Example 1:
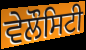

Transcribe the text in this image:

ਵੇਲੌਸਿਟੀ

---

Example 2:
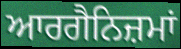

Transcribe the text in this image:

ਆਰਗੈਨਿਜ਼ਮਾਂ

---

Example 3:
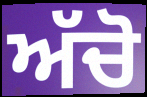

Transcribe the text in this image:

ਅੱਚੋ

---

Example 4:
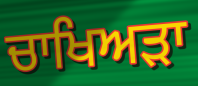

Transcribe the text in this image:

ਚਾਖਿਅੜਾ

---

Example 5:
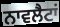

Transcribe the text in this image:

ਨਾਵਲੈਟਾਂ